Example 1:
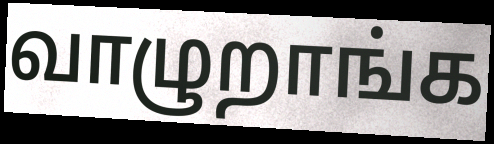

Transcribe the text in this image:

வாழுறாங்க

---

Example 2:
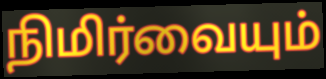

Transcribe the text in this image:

நிமிர்வையும்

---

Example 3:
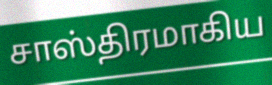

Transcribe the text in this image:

சாஸ்திரமாகிய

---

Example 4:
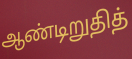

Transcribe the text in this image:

ஆண்டிறுதித்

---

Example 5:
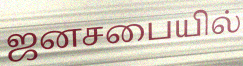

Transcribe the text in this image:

ஜனசபையில்